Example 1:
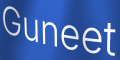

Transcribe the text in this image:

Guneet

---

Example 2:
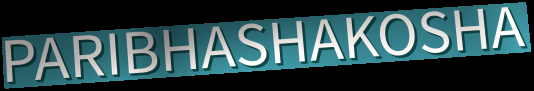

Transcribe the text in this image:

PARIBHASHAKOSHA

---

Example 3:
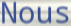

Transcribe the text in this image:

Nous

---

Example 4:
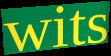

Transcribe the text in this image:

wits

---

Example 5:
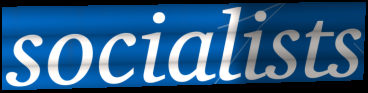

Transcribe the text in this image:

socialists